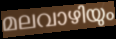
മലവാഴിയും